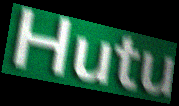
Hutu